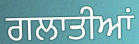
ਗਲਾਤੀਆਂ